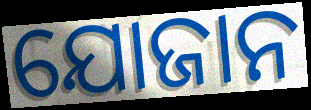
ଯୋଜାନ